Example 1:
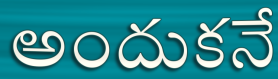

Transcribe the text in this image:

అందుకనే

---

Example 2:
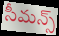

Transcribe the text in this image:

సీమన్స్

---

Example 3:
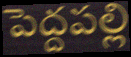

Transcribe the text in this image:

పెద్దపల్లి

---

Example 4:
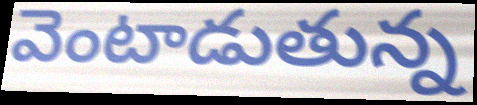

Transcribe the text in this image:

వెంటాడుతున్న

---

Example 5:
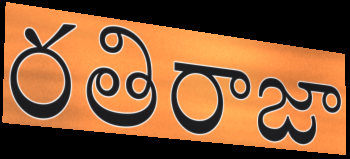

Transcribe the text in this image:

రతిరాజా